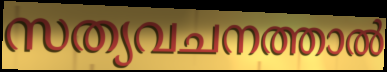
സത്യവചനത്താൽ